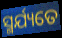
ସ୍ମର୍ଯ୍ୟତେ